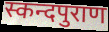
स्कन्दपुराण